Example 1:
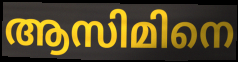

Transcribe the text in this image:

ആസിമിനെ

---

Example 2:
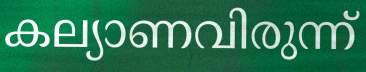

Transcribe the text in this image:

കല്യാണവിരുന്ന്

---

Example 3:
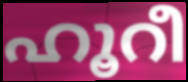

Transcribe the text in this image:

ഹൂറീ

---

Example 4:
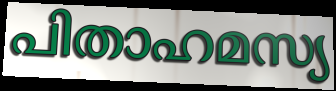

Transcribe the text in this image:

പിതാഹമസ്യ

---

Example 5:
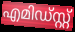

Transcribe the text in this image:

എമിഡ്സ്റ്റ്